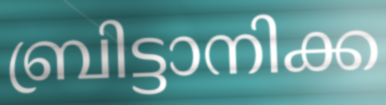
ബ്രിട്ടാനിക്ക